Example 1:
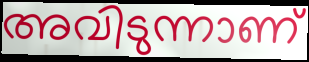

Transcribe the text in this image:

അവിടുന്നാണ്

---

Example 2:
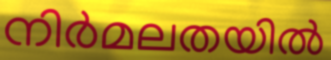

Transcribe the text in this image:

നിർമലതയിൽ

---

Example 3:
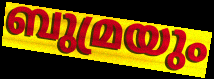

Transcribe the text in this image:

ബുമ്രയും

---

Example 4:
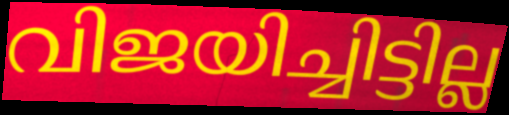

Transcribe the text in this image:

വിജയിച്ചിട്ടില്ല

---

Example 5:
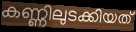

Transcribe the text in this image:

കണ്ണിലുടക്കിയത്